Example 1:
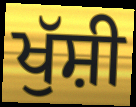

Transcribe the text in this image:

ਖੁੱਸ਼ੀ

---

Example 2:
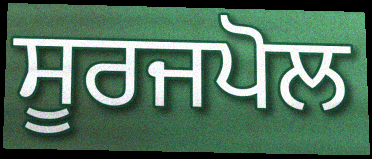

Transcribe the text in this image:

ਸੂਰਜਪੋਲ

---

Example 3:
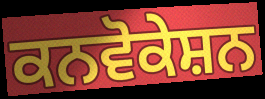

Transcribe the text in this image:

ਕਨਵੋਕੇਸ਼ਨ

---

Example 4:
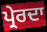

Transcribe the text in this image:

ਪ੍ਰੇਰਦਾ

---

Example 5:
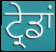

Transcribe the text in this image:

ਟ੍ਰੇਡਾਂ